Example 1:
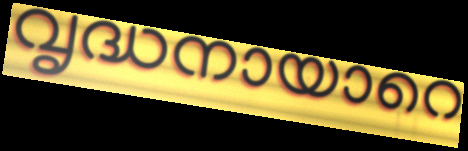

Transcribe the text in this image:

വൃദ്ധനായാറെ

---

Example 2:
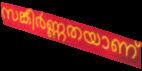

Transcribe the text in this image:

സങ്കീർണ്ണതയാണ്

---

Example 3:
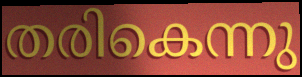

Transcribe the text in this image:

തരികെന്നു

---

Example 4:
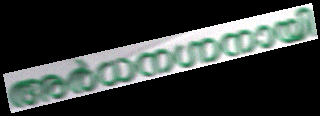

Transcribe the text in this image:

അർധനഗ്നനായി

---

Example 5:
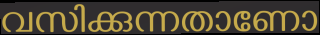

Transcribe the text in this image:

വസിക്കുന്നതാണോ